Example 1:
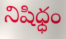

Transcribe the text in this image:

నిషిధ్ధం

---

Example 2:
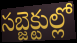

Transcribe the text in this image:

సబ్జెక్టుల్లో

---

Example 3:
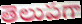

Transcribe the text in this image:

తెలుపగా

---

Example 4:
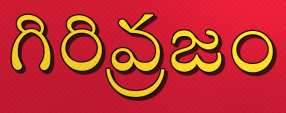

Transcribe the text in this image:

గిరివ్రజం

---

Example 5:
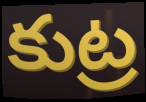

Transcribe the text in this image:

కుట్ర